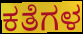
ಕತೆಗಳ